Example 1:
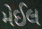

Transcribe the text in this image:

મેઈલ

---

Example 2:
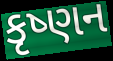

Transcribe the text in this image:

કૃષ્ણન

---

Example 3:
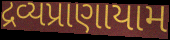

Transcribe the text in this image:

દ્રવ્યપ્રાણાયામ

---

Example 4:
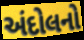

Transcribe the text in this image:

અંદોલનો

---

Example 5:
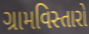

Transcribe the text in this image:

ગ્રામવિસ્તારો